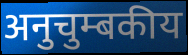
अनुचुम्बकीय